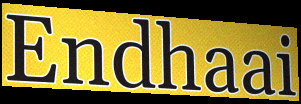
Endhaai